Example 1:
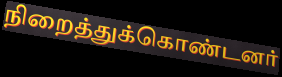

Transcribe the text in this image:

நிறைத்துக்கொண்டனர்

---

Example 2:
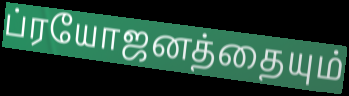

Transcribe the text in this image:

ப்ரயோஜனத்தையும்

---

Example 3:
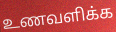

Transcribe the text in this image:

உணவளிக்க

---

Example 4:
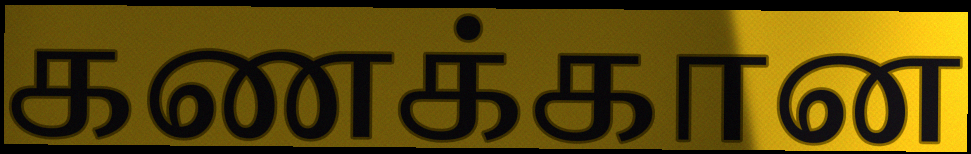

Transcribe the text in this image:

கணக்கான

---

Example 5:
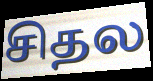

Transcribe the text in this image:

சிதல